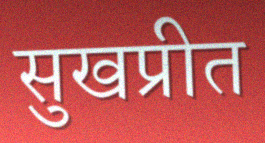
सुखप्रीत